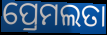
ପ୍ରେମଲତା